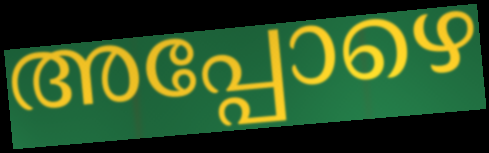
അപ്പോഴെ